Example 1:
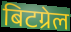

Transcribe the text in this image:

बिटग्रेल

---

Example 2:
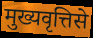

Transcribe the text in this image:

मुख्यवृत्तिसे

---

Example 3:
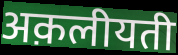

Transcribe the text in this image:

अक़लीयती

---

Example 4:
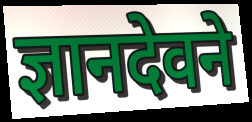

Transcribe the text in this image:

ज्ञानदेवने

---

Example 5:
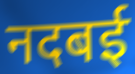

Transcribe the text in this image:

नदबई